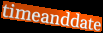
timeanddate